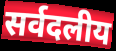
सर्वदलीय